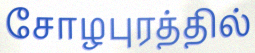
சோழபுரத்தில்